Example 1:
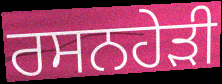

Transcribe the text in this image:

ਰਸਨਹੇੜੀ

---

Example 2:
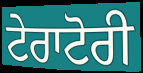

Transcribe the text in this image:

ਟੇਰਾਟੋਰੀ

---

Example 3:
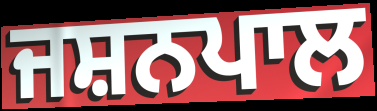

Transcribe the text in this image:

ਜਸ਼ਨਪਾਲ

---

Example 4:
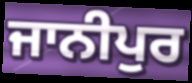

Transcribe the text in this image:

ਜਾਨੀਪੁਰ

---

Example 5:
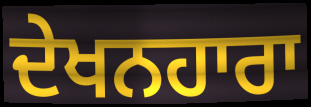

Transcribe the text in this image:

ਦੇਖਨਹਾਰਾ